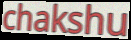
chakshu